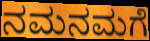
ನಮನಮಗೆ